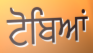
ਟੋਬਿਆਂ